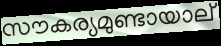
സൗകര്യമുണ്ടായാല്